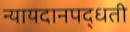
न्यायदानपद्धती